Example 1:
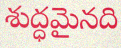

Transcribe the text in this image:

శుద్ధమైనది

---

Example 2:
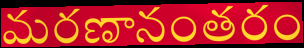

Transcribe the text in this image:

మరణానంతరం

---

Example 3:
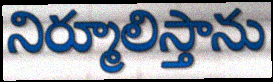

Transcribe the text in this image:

నిర్మూలిస్తాను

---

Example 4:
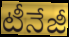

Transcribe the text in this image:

టీనేజీ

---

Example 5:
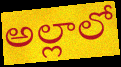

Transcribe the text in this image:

అల్లాలో